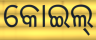
କୋଇଲ୍